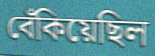
বেঁকিয়েছিল